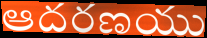
ఆదరణయు